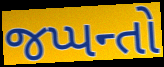
જપ્પન્તો